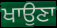
ਖਾਉਣਾ